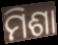
ମିଶା